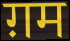
ग़म